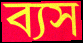
ব্যস